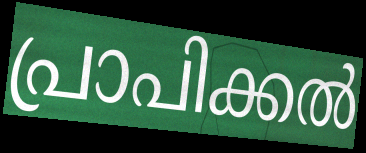
പ്രാപിക്കൽ